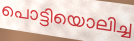
പൊട്ടിയൊലിച്ച